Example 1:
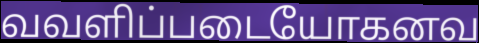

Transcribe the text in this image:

வவளிப்படையோகனவ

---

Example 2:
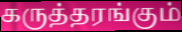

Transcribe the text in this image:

கருத்தரங்கும்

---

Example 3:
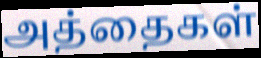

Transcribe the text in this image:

அத்தைகள்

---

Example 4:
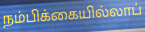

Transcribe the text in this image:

நம்பிக்கையில்லாப்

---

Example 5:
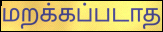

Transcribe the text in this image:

மறக்கப்படாத